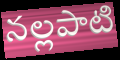
నల్లపాటి